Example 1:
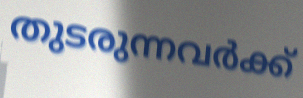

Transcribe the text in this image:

തുടരുന്നവർക്ക്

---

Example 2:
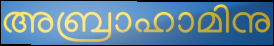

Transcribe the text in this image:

അബ്രാഹാമിനു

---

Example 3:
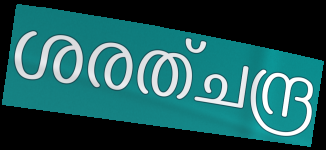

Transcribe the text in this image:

ശരത്ചന്ദ്ര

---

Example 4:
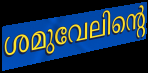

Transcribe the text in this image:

ശമുവേലിന്റെ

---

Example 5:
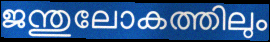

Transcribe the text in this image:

ജന്തുലോകത്തിലും